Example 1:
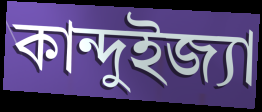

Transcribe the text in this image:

কান্দুইজ্যা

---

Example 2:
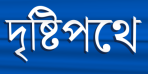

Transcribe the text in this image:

দৃষ্টিপথে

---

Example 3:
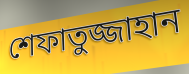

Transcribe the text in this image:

শেফাতুজ্জাহান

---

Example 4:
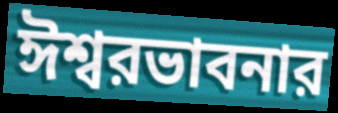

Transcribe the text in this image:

ঈশ্বরভাবনার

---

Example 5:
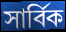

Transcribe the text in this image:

সার্বিক